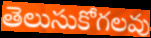
తెలుసుకోగలవు